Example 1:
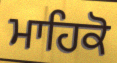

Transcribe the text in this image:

ਮਾਹਿਕੋ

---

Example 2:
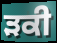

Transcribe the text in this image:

ੜਕੀ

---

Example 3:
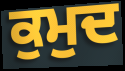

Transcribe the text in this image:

ਕੁਮੁਦ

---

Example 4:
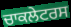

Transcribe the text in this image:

ਚਾਕਲੇਟਰਸ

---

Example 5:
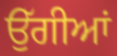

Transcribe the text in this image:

ਉੱਗੀਆਂ